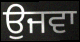
ਉਜਵਾ